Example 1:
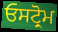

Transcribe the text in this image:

ਓਸਟ੍ਰੋਮ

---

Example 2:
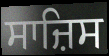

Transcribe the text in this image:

ਸਾਜ਼ਿਸ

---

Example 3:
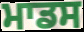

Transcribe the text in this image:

ਮਾਡਸ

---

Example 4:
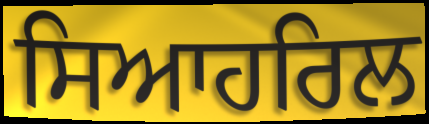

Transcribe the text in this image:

ਸਿਆਹਰਿਲ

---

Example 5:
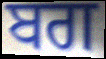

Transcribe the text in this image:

ਬਗ